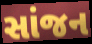
સાંજન